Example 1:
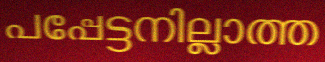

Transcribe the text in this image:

പപ്പേട്ടനില്ലാത്ത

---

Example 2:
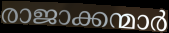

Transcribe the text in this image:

രാജാക്കന്മാർ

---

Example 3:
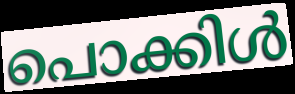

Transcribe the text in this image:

പൊക്കിൾ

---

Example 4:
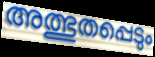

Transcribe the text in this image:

അത്ഭുതപ്പെടും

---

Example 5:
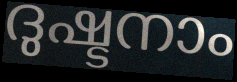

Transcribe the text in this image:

ദുഷ്ടനാം